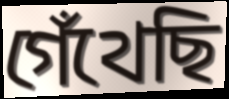
গেঁথেছি